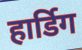
हार्डिग